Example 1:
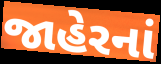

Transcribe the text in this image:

જાહેરનાં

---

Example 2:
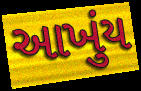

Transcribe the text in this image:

આખુંય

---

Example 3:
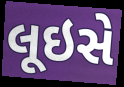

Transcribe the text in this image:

લૂઇસે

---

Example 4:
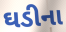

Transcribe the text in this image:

ઘડીના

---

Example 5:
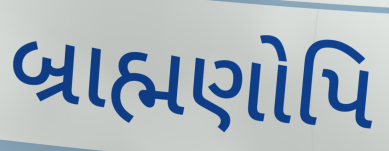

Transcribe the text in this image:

બ્રાહ્મણોપિ